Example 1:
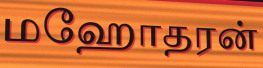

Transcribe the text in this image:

மஹோதரன்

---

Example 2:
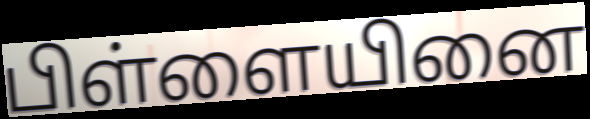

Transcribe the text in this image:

பிள்ளையினை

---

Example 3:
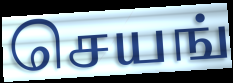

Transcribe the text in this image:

செயங்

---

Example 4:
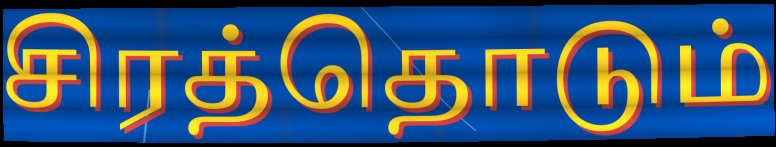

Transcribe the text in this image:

சிரத்தொடும்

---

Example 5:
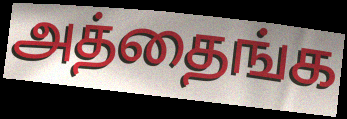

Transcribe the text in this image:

அத்தைங்க